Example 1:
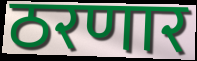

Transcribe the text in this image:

ठरणार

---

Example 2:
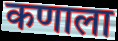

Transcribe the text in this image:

कणाला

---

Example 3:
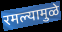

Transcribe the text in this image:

रमल्यामुळे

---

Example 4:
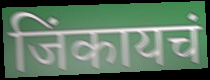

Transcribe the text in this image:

जिंकायचं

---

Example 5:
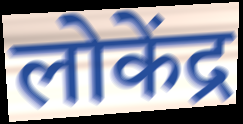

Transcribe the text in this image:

लोकेंद्र